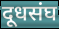
दूधसंघ